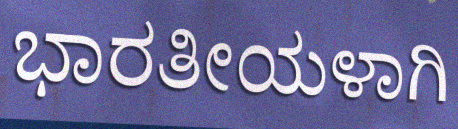
ಭಾರತೀಯಳಾಗಿ